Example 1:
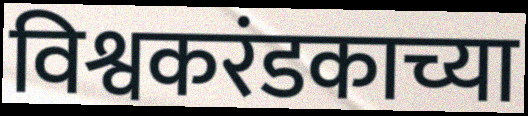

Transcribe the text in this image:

विश्वकरंडकाच्या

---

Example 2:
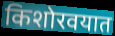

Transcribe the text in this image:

किशोरवयात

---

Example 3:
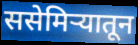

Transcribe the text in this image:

ससेमिऱ्यातून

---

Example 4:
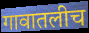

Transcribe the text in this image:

गावातलीच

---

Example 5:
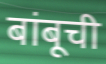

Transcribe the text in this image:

बांबूची